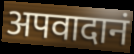
अपवादानं